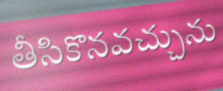
తీసికొనవచ్చును